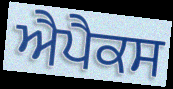
ਐਪੈਕਸ